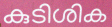
കുടിശിക